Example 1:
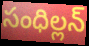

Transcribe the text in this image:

సంధిల్లన్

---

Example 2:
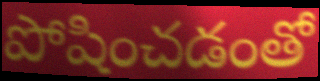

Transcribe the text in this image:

పోషించడంతో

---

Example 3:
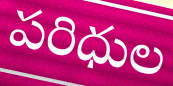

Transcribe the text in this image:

పరిధుల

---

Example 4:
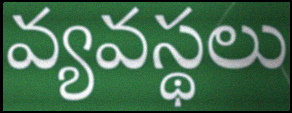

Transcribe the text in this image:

వ్యవస్థలు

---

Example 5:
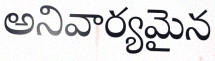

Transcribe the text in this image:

అనివార్యమైన